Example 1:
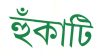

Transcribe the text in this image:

হুঁকাটি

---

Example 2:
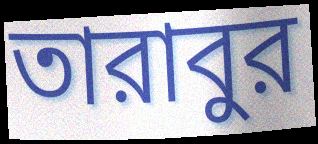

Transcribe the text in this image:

তারাবুর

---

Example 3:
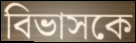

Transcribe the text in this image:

বিভাসকে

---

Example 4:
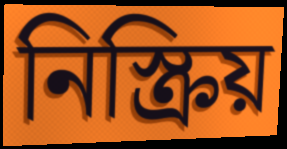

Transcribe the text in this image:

নিস্ক্রিয়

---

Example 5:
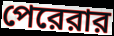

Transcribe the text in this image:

পেরেরার